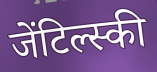
जेंटिल्स्की